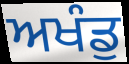
ਅਖੰਡੁ